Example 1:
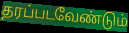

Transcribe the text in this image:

தரப்படவேண்டும்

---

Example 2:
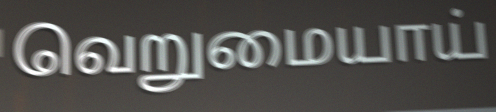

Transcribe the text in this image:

வெறுமையாய்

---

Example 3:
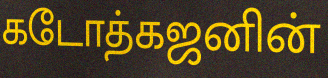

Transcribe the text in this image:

கடோத்கஜனின்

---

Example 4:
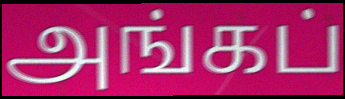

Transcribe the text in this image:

அங்கப்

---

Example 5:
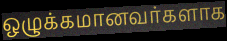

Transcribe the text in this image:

ஒழுக்கமானவர்களாக